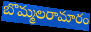
బొమ్మలరామారం